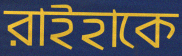
রাইহাকে